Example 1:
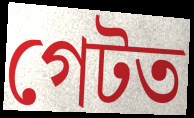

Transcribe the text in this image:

গেটত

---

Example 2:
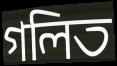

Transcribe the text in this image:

গলিত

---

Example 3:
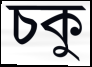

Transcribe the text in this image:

চকু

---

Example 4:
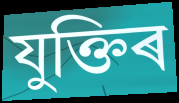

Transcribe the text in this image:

যুক্তিৰ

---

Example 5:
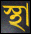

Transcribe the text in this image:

স্থা